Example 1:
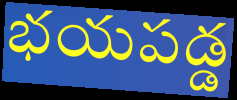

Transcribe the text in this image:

భయపడ్డ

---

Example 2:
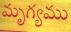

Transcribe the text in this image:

మృగ్యము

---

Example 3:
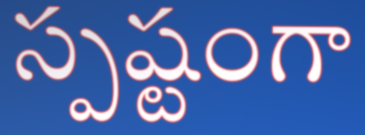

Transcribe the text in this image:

స్పష్టంగా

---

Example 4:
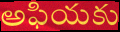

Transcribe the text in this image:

అఫియకు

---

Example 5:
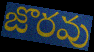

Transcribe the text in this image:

జొరవు